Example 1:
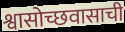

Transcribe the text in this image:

श्वासोच्छवासाची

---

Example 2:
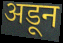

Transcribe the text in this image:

अडून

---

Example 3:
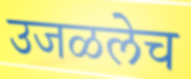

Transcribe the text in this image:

उजळलेच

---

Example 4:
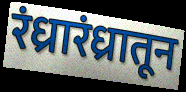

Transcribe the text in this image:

रंध्रारंध्रातून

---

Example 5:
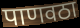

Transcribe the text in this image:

पाणवठा